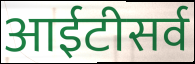
आईटीसर्व